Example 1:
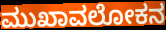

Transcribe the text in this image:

ಮುಖಾವಲೋಕನ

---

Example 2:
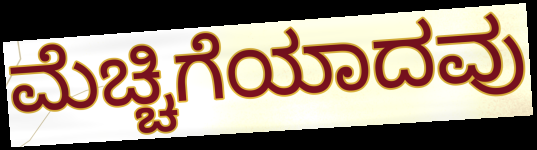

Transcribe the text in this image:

ಮೆಚ್ಚಿಗೆಯಾದವು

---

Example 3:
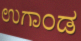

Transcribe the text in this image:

ಉಗಾಂಡ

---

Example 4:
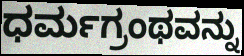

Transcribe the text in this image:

ಧರ್ಮಗ್ರಂಥವನ್ನು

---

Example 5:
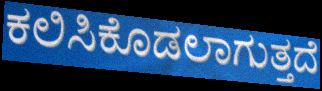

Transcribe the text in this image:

ಕಲಿಸಿಕೊಡಲಾಗುತ್ತದೆ